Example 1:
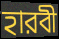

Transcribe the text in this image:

হারবী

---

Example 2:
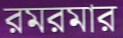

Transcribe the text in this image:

রমরমার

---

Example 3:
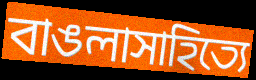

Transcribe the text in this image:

বাঙলাসাহিত্যে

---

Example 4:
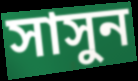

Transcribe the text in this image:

সাসুন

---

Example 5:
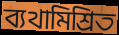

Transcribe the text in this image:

ব্যথামিশ্রিত